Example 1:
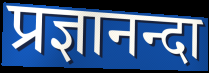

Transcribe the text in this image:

प्रज्ञानन्दा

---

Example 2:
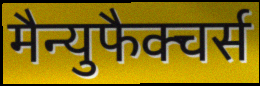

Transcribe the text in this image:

मैन्युफैक्चर्स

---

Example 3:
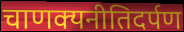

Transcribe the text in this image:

चाणक्यनीतिदर्पण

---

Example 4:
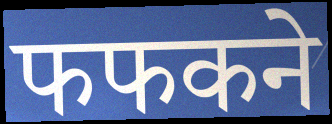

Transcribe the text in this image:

फफकने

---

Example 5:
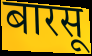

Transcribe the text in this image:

बारसू